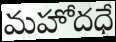
మహోదధే